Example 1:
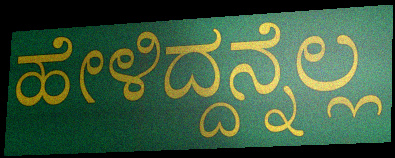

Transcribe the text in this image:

ಹೇಳಿದ್ದನ್ನೆಲ್ಲ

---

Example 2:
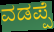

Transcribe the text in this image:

ವಡಪ್ಪೆ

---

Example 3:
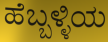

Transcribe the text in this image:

ಹೆಬ್ಬಳ್ಳಿಯ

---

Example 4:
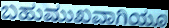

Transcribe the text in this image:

ಬಹುಮುಖವಾಗಿಯೂ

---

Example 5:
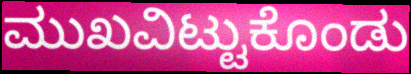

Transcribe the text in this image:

ಮುಖವಿಟ್ಟುಕೊಂಡು